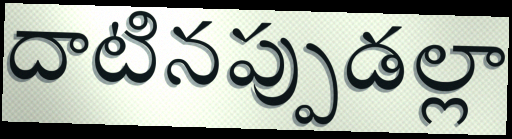
దాటినప్పుడల్లా